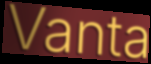
Vanta